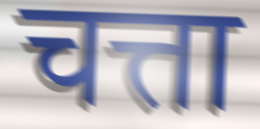
चत्ता